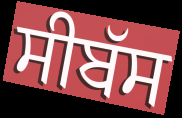
ਸੀਬੱਸ